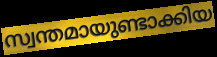
സ്വന്തമായുണ്ടാക്കിയ